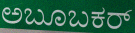
ಅಬೂಬಕರ್